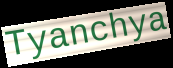
Tyanchya